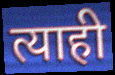
त्याही